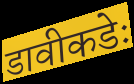
डावीकडेः